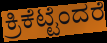
ಕ್ರಿಕೆಟ್ಟೆಂದರೆ